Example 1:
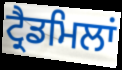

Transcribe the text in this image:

ਟ੍ਰੈਡਮਿਲਾਂ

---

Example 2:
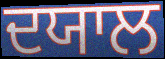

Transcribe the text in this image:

ਦਯਾਲ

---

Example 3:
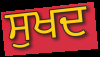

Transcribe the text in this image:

ਸੁਖਦ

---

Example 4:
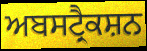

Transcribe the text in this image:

ਅਬਸਟ੍ਰੈਕਸ਼ਨ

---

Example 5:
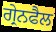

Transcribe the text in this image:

ਗ੍ਰੇਨਫੈਲ